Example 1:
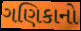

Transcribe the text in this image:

ગણિકાનો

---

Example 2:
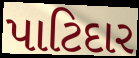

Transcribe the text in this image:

પાટિદાર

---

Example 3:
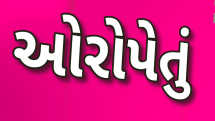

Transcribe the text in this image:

ઓરોપેતું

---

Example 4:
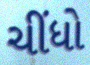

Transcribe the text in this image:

ચીંધો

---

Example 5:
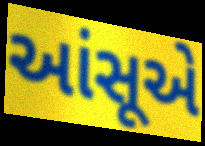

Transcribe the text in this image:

આંસૂએ